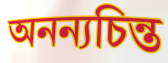
অনন্যচিন্ত